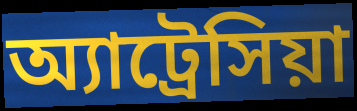
অ্যাট্রেসিয়া